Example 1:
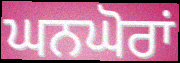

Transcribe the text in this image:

ਘਨਘੋਰਾਂ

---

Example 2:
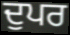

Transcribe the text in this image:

ਦੁਪਰ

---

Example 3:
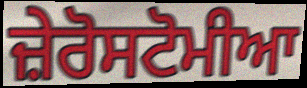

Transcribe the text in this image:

ਜ਼ੇਰੋਸਟੋਮੀਆ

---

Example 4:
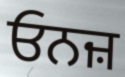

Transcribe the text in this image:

ਓਨਜ਼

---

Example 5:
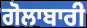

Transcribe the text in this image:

ਗੋਲਾਬਾਰੀ